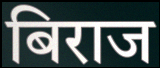
बिराज